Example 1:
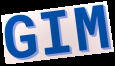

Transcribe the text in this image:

GIM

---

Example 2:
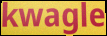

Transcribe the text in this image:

kwagle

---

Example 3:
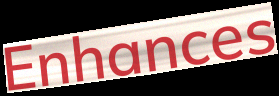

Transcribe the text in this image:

Enhances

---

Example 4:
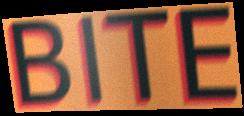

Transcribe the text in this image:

BITE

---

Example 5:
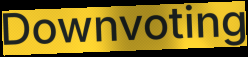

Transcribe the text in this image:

Downvoting